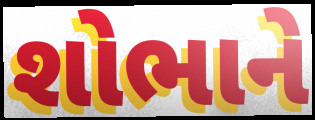
શોભાને